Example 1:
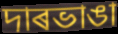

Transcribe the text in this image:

দাৰভাঙা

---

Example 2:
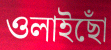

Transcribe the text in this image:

ওলাইছোঁ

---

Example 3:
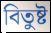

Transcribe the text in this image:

বিতুষ্ট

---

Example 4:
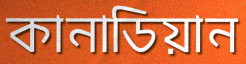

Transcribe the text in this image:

কানাডিয়ান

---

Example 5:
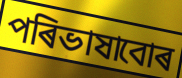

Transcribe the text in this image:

পৰিভাষাবোৰ